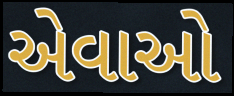
એવાઓ